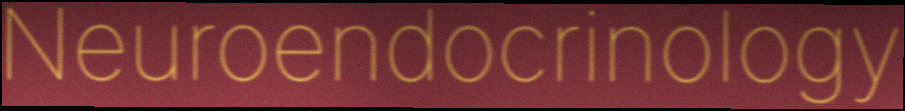
Neuroendocrinology